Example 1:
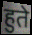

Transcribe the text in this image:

हुते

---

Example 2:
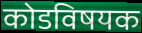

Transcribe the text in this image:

कोडविषयक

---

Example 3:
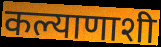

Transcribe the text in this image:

कल्याणाशी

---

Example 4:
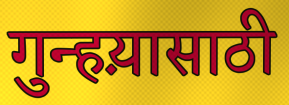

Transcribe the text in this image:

गुन्हय़ासाठी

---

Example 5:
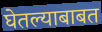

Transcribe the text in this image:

घेतल्याबाबत